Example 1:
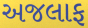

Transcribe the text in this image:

અજલાફ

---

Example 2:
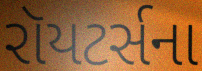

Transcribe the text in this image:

રૉયટર્સના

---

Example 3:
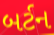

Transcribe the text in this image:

બર્ટન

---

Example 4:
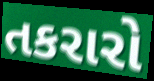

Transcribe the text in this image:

તકરારો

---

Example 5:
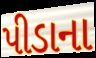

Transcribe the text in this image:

પીડાના